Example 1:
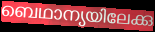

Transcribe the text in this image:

ബെഥാന്യയിലേക്കു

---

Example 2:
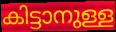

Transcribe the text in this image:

കിട്ടാനുള്ള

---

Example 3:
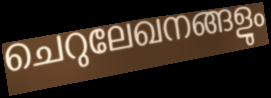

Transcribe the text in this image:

ചെറുലേഖനങ്ങളും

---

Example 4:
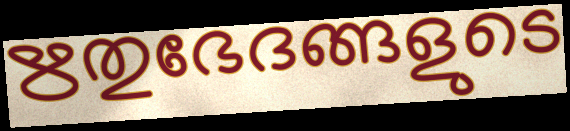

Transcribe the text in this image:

ഋതുഭേദങ്ങളുടെ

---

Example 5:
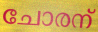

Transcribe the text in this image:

ചോരന്